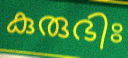
കുരുഭിഃ